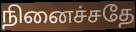
நினைச்சதே